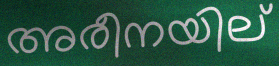
അരീനയില്